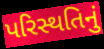
પરિસ્થતિનું